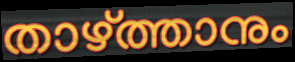
താഴ്ത്താനും